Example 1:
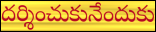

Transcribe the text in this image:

దర్శించుకునేందుకు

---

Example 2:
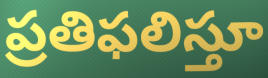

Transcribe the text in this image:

ప్రతిఫలిస్తూ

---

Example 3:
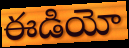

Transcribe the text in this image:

ఈడియో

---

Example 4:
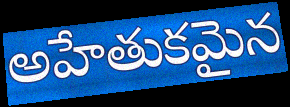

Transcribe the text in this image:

అహేతుకమైన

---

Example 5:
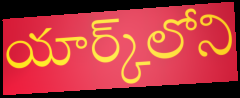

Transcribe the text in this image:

యార్క్‌లోని